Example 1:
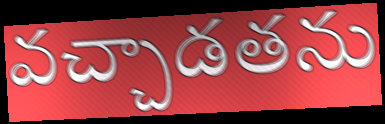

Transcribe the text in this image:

వచ్చాడతను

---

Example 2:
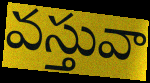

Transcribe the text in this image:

వస్తువా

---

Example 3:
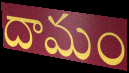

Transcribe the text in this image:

దామం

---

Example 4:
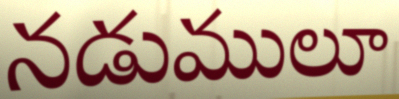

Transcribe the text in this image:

నడుములూ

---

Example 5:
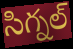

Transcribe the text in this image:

సిగ్నల్